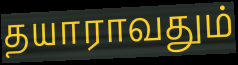
தயாராவதும்